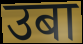
उबा